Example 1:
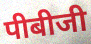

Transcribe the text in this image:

पीबीजी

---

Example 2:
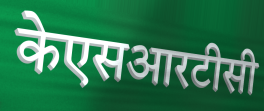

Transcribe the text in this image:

केएसआरटीसी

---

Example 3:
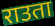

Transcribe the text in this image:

राउता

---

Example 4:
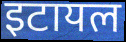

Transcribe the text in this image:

इटायल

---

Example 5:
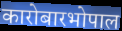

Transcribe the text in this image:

कारोबारभोपाल